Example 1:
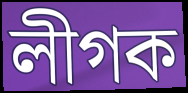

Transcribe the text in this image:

লীগক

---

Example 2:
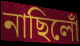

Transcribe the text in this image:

নাছিলোঁ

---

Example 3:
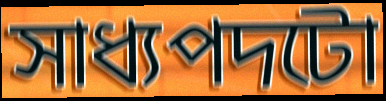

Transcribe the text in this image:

সাধ্যপদটো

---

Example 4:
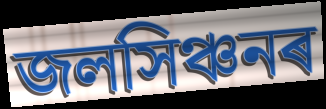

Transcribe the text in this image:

জলসিঞ্চনৰ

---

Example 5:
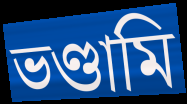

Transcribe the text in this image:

ভণ্ডামি